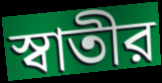
স্বাতীর